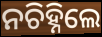
ନଚିହ୍ନିଲେ